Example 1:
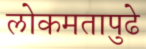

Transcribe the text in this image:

लोकमतापुढे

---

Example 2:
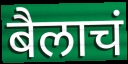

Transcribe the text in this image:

बैलाचं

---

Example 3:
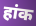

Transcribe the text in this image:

हांक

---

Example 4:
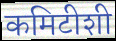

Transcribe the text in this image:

कमिटीशी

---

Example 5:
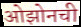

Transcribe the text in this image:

ओझोनची